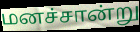
மனச்சான்று